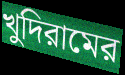
খুদিরামের